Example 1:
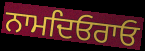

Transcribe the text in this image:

ਨਾਮਦਿਓਰਾਓ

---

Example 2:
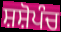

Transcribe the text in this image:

ਸ਼ਸ਼ੋਪੰਚ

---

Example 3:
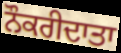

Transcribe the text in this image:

ਨੌਕਰੀਦਾਤਾ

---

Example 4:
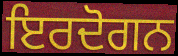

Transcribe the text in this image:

ਇਰਦੋਗਨ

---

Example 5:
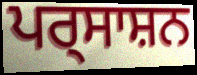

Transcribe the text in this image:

ਪਰ੍ਸਾਸ਼ਨ